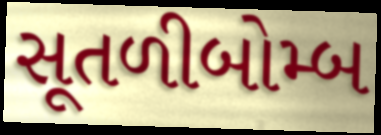
સૂતળીબોમ્બ